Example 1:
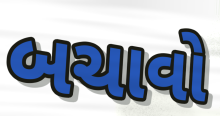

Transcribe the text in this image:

બચાવો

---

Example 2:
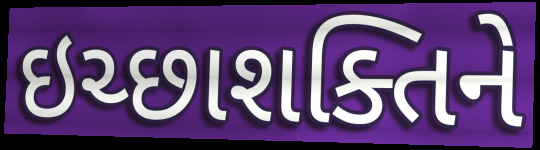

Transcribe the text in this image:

ઇચ્છાશક્તિને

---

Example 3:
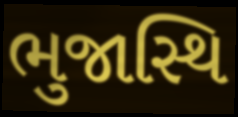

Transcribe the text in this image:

ભુજાસ્થિ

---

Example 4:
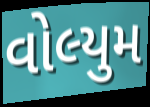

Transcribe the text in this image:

વોલ્યુમ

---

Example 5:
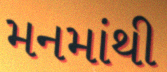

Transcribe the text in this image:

મનમાંથી